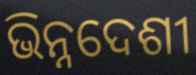
ଭିନ୍ନଦେଶୀ